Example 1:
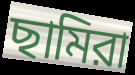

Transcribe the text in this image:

ছামিরা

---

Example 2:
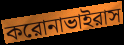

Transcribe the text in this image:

করোনাভাইরাস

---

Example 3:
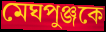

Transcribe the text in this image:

মেঘপুঞ্জকে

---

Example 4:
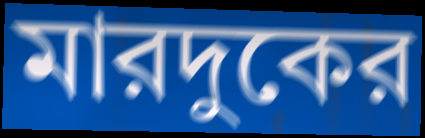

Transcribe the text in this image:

মারদুকের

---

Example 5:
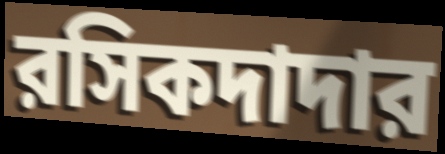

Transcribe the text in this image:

রসিকদাদার